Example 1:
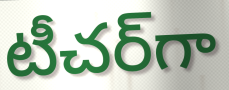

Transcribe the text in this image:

టీచర్‌గా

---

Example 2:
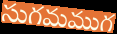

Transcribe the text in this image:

సుగమముగ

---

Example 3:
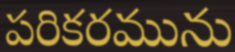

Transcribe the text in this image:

పరికరమును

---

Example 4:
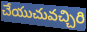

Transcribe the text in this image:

చేయుచువచ్చిరి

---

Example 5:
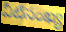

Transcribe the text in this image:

వీటిసంఖ్య